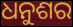
ଧନୁଶର